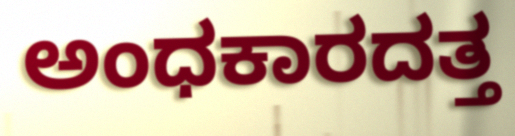
ಅಂಧಕಾರದತ್ತ